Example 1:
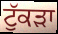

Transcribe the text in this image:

ਟੁੱਕੜਾ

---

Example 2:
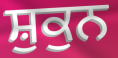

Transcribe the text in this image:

ਸ਼ੁਕੁਨ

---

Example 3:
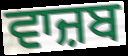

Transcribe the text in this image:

ਵਾਜ਼ਬ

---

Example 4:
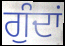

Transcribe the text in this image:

ਗੁੰਦਾਂ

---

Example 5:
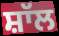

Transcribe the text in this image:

ਸ਼ਾੱਲ